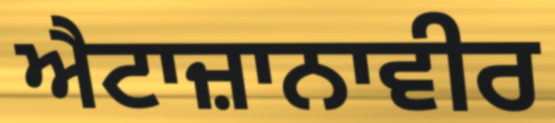
ਐਟਾਜ਼ਾਨਾਵੀਰ